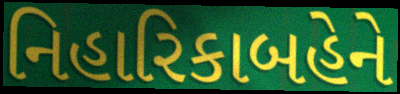
નિહારિકાબહેને